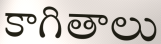
కాగితాలు